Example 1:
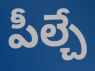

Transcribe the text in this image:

పీల్చే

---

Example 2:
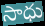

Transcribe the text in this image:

సాధు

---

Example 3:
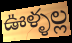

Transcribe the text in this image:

ఊళ్ళల్ల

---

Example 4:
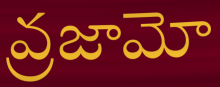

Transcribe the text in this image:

వ్రజామో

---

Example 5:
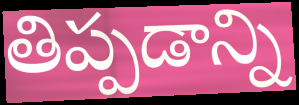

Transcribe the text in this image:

తిప్పడాన్ని